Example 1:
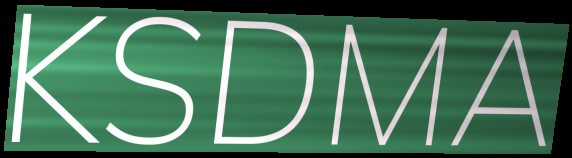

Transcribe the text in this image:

KSDMA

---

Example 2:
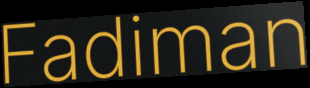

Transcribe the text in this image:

Fadiman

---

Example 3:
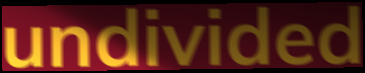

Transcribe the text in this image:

undivided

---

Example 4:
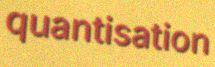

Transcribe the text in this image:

quantisation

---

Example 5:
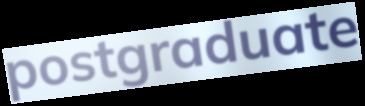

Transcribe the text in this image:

postgraduate